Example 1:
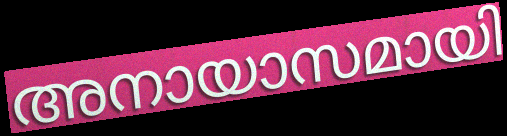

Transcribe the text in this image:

അനായാസമായി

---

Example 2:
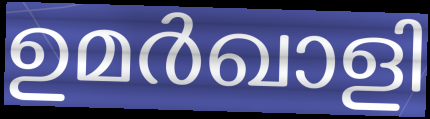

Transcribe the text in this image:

ഉമർഖാളി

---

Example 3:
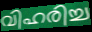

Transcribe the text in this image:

വിഹരിച്ച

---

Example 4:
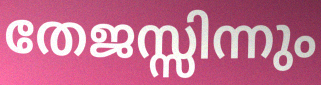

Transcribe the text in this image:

തേജസ്സിന്നും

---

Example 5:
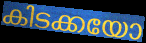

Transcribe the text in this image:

കിടക്കയോ